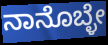
ನಾನೊಬ್ಳೇ